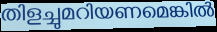
തിളച്ചുമറിയണമെങ്കിൽ